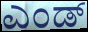
ಎಂಡ್